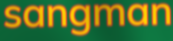
sangman